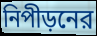
নিপীড়নের